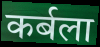
कर्बला